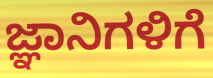
ಜ್ಞಾನಿಗಳಿಗೆ